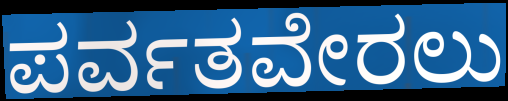
ಪರ್ವತವೇರಲು